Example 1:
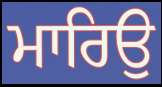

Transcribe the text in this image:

ਮਾਰਿਉ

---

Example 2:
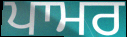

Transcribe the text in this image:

ਪਾਮਰ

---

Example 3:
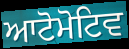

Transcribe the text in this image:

ਆਟੋਮੋਟਿਵ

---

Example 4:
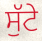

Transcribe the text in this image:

ਸੁੱਟੇ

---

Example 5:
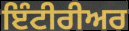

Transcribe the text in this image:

ਇੰਟੀਰੀਅਰ